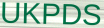
UKPDS